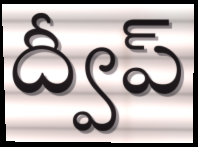
ద్వీప్